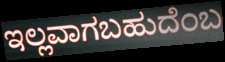
ಇಲ್ಲವಾಗಬಹುದೆಂಬ